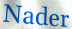
Nader